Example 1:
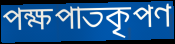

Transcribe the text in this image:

পক্ষপাতকৃপণ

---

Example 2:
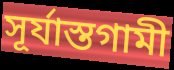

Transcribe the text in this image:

সূর্যাস্তগামী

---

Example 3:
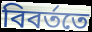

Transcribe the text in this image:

বিবর্ততে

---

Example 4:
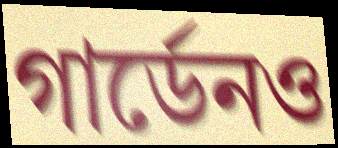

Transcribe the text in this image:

গার্ডেনও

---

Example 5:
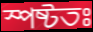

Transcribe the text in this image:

স্পষ্টতঃ